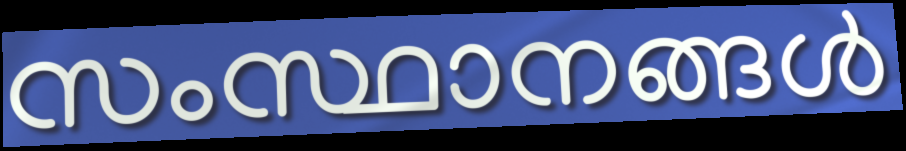
സംസ്ഥാനങ്ങൾ